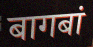
बागबां